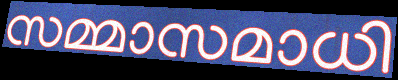
സമ്മാസമാധി